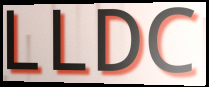
LLDC